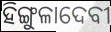
ହିଙ୍ଗୁଳାଦେବୀ